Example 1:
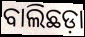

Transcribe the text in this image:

ବାଲିଛଡ଼ା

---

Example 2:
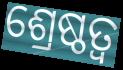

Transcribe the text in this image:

ଶ୍ରେଷ୍ଠତ୍ବ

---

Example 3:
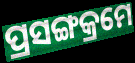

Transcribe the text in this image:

ପ୍ରସଙ୍ଗକ୍ରମେ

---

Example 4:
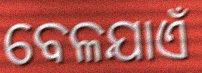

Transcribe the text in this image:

ବେଳଯାଏଁ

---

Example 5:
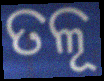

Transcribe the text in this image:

ତଳୂ